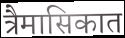
त्रैमासिकात